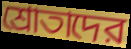
শ্রোতাদের